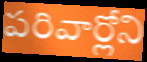
పరివార్లోని